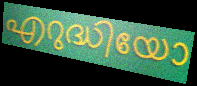
എറുദ്ധിയോ